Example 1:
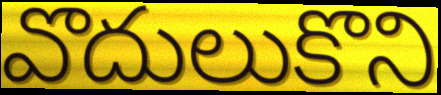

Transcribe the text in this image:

వొదులుకొని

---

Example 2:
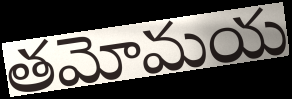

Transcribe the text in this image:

తమోమయ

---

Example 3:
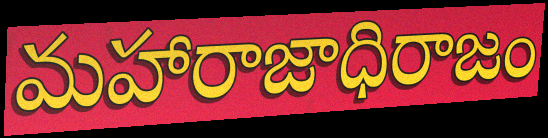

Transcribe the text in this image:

మహారాజాధిరాజం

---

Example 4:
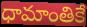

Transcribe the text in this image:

ధామాంతికే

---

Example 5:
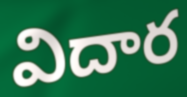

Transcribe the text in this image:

విదార